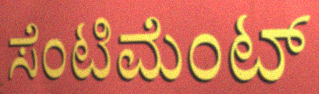
ಸೆಂಟಿಮೆಂಟ್